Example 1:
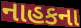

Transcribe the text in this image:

નાહકના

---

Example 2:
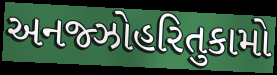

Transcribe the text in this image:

અનજ્ઝોહરિતુકામો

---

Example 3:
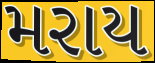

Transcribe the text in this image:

મરાય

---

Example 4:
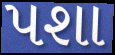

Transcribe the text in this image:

પશા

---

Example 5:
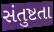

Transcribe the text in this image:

સંતુષ્ટતા